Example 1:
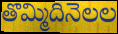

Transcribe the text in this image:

తొమ్మిదినెలల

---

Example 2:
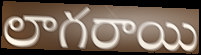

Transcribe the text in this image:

లాగరాయి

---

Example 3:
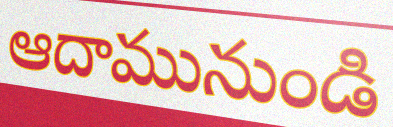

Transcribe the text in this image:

ఆదామునుండి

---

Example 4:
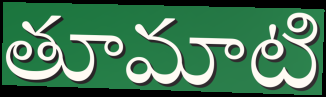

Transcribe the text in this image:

తూమాటి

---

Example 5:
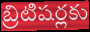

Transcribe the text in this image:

బ్రిటిషర్లకు